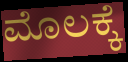
ಮೊಲಕ್ಕೆ